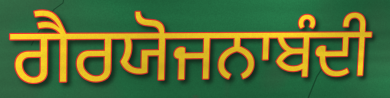
ਗੈਰਯੋਜਨਾਬੰਦੀ